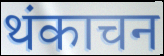
थंकाचन